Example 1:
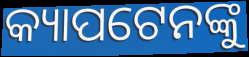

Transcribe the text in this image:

କ୍ୟାପଟେନଙ୍କୁ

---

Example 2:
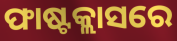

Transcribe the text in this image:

ଫାଷ୍ଟକ୍ଲାସରେ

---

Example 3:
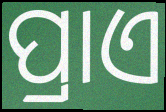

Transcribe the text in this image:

ପ୍ରାଏ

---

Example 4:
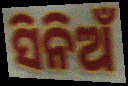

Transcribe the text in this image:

ସିନିଅଁ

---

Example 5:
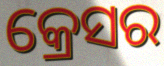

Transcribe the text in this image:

କ୍ରେସର